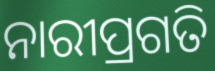
ନାରୀପ୍ରଗତି